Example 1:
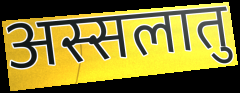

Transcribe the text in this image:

अस्सलातु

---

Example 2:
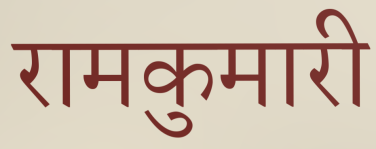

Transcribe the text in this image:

रामकुमारी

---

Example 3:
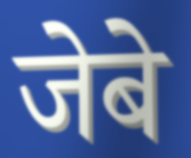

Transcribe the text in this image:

जेबे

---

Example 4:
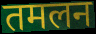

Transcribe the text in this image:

तमलन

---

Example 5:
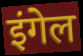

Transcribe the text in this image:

इंगेल